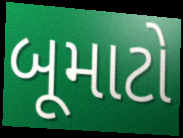
બૂમાટો